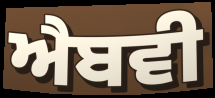
ਐਬਵੀ